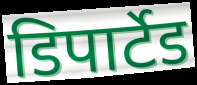
डिपार्टेड